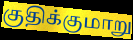
குதிக்குமாறு